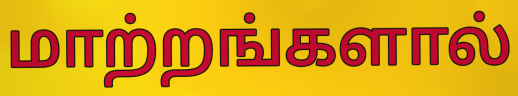
மாற்றங்களால்